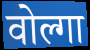
वोल्गा